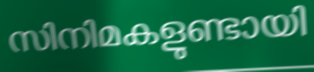
സിനിമകളുണ്ടായി